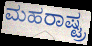
ಮಹರಾಷ್ಟ್ರ